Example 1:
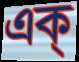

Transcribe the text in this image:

এক্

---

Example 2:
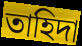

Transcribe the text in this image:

তাহিদা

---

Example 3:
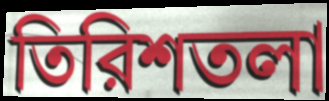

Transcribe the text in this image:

তিরিশতলা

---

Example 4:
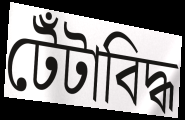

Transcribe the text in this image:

টেঁটাবিদ্ধ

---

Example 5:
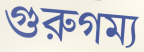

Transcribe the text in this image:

গুরুগম্য